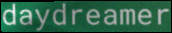
daydreamer